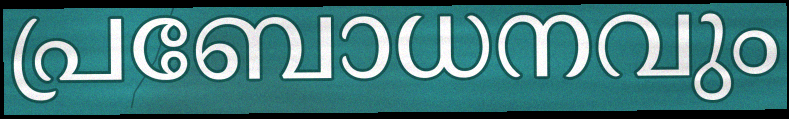
പ്രബോധനവും